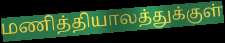
மணித்தியாலத்துக்குள்